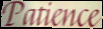
Patience